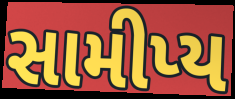
સામીપ્ય